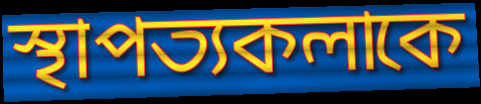
স্থাপত্যকলাকে